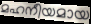
മഹനീയമായ